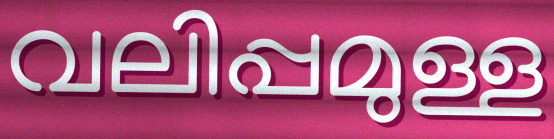
വലിപ്പമുള്ള